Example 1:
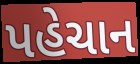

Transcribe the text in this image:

પહેચાન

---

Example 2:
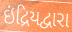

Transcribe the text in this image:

ઇંદ્રિયદ્વારા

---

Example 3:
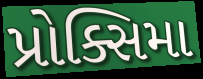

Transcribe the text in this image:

પ્રોક્સિમા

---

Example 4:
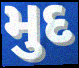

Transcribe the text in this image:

મુદ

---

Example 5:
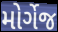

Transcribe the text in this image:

મોર્ગેજ